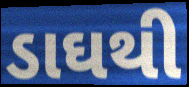
ડાઘથી